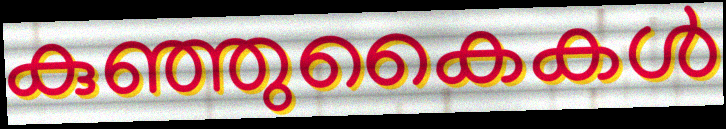
കുഞ്ഞുകൈകൾ